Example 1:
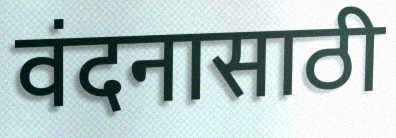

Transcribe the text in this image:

वंदनासाठी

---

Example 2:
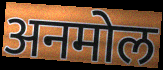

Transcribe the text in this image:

अनमोल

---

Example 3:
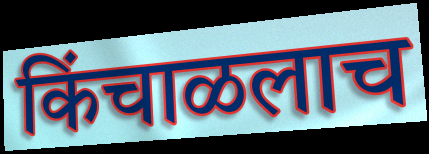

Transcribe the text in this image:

किंचाळलाच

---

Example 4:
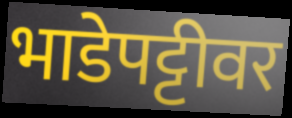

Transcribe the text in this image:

भाडेपट्टीवर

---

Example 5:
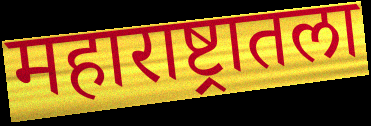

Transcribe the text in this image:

महाराष्ट्रातला